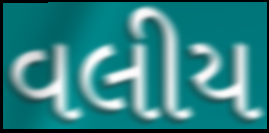
વલીય